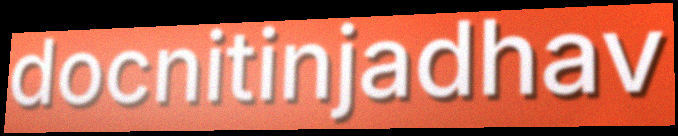
docnitinjadhav